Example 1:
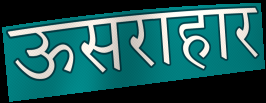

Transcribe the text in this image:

ऊसराहार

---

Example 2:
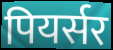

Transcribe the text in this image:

पियर्सर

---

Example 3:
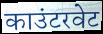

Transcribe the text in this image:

काउंटरवेट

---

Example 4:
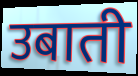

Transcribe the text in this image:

उबाती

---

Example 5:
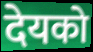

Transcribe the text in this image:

देयको